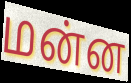
மன்ன